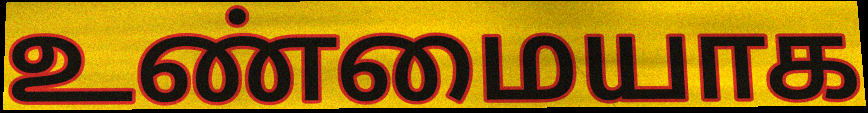
உண்மையாக